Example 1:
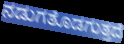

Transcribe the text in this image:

ನಡುಗತೊಡಗುತ್ತದೆ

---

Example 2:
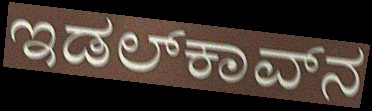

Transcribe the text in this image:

ಇಡಲ್‌ಕಾವ್‌ನ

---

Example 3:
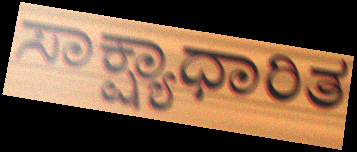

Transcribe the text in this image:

ಸಾಕ್ಷ್ಯಾಧಾರಿತ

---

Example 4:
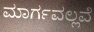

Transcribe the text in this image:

ಮಾರ್ಗವಲ್ಲವೆ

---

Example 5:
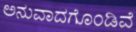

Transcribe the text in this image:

ಅನುವಾದಗೊಂಡಿವೆ